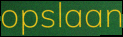
opslaan